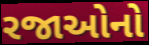
રજાઓનો